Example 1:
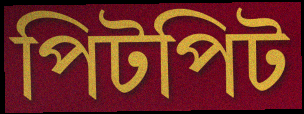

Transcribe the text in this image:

পিটপিট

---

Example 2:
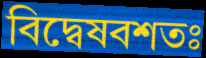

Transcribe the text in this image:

বিদ্বেষবশতঃ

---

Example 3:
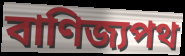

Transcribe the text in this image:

বাণিজ্যপথ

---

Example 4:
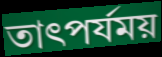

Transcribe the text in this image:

তাৎপর্যময়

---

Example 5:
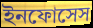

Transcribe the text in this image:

ইনফোসেস